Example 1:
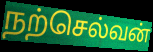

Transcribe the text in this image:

நற்செல்வன்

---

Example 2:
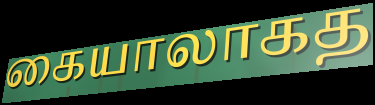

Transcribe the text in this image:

கையாலாகத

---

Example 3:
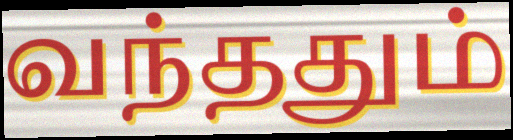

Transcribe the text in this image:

வந்ததும்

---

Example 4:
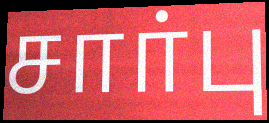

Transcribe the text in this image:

சார்பு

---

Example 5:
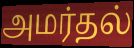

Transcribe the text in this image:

அமர்தல்